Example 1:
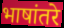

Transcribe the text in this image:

भाषांतरे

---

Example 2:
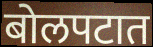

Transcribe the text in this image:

बोलपटात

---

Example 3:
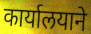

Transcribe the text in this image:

कार्यालयाने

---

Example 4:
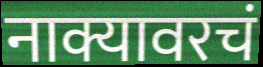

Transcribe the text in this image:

नाक्यावरचं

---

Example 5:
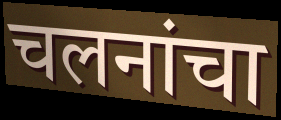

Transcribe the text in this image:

चलनांचा